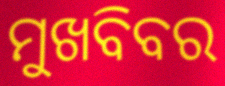
ମୁଖବିବର